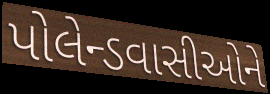
પોલેન્ડવાસીઓને